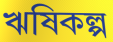
ঋষিকল্প